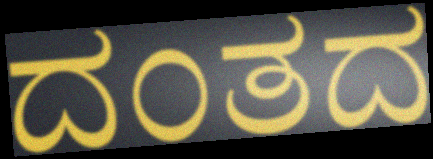
ದಂತದ